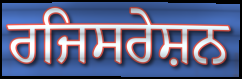
ਰਜਿਸਰੇਸ਼ਨ